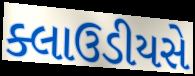
ક્લાઉડીયસે